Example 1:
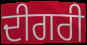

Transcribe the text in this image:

ਦੀਗਰੀ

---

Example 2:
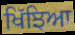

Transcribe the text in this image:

ਖਿੱਝਿਆ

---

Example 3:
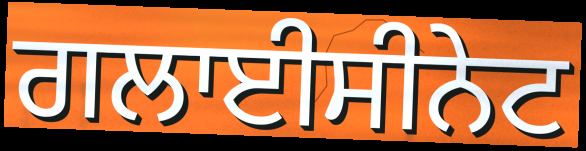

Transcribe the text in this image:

ਗਲਾਈਸੀਨੇਟ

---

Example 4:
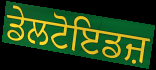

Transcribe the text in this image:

ਡੇਲਟੋਇਡਜ਼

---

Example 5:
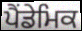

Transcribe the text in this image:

ਪੈਂਡੇਮਿਕ